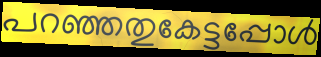
പറഞ്ഞതുകേട്ടപ്പോൾ